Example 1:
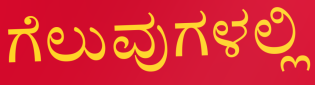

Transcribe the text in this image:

ಗೆಲುವುಗಳಲ್ಲಿ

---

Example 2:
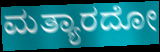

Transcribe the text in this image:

ಮತ್ಯಾರದೋ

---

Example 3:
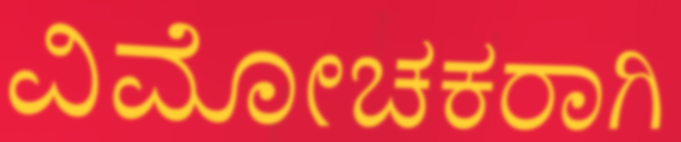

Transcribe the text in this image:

ವಿಮೋಚಕರಾಗಿ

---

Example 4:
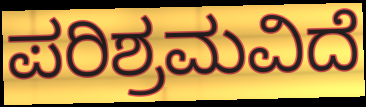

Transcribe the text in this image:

ಪರಿಶ್ರಮವಿದೆ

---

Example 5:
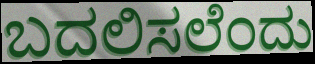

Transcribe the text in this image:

ಬದಲಿಸಲೆಂದು